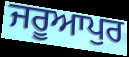
ਜਰੂਆਪੁਰ